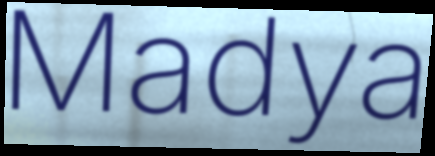
Madya